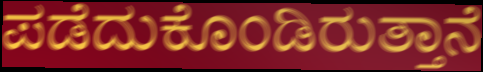
ಪಡೆದುಕೊಂಡಿರುತ್ತಾನೆ